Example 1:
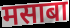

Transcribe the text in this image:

मसाबा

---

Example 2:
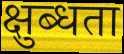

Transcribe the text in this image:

क्षुब्धता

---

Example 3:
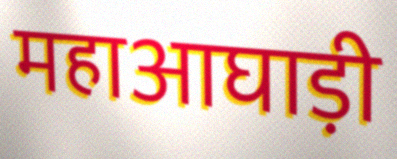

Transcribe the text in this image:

महाआघाड़ी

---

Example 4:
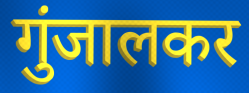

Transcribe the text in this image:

गुंजालकर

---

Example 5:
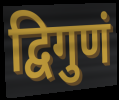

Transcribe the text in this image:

द्विगुणं